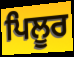
ਪਿਲੂਰ